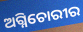
ଅଗ୍ନିଚୋରୀର